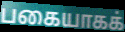
பகையாகக்